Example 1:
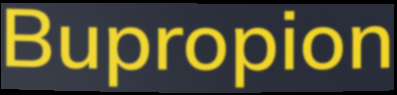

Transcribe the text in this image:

Bupropion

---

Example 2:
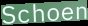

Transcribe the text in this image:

Schoen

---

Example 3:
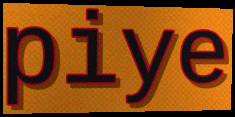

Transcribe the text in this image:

piye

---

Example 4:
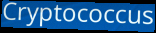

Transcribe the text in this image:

Cryptococcus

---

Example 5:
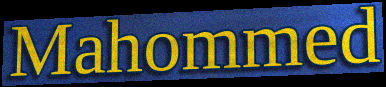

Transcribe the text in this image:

Mahommed